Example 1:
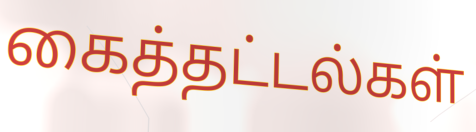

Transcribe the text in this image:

கைத்தட்டல்கள்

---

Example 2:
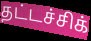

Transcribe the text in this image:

தட்டச்சிக்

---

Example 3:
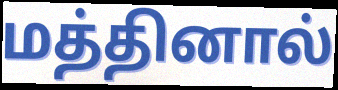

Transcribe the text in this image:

மத்தினால்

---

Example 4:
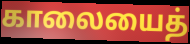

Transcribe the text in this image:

காலையைத்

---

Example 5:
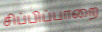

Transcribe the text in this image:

சிப்பிப்பாறை